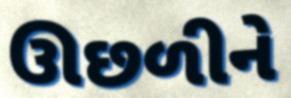
ઊછળીને